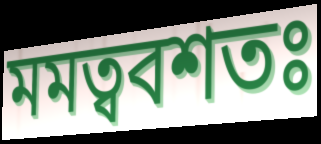
মমত্ববশতঃ